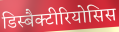
डिस्बैक्टीरियोसिस